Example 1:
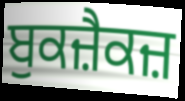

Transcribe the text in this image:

ਬੁਕਜ਼ੈਕਜ਼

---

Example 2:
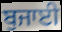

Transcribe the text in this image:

ਬੁਜਾਈ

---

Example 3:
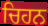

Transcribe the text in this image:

ਚਿਹਨ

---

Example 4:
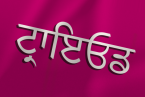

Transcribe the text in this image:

ਟ੍ਰਾਇਓਡ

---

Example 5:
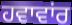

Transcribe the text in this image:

ਹਵਾਵਾਂਰ